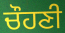
ਚੌਹਣੀ